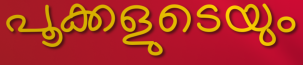
പൂക്കളുടെയും